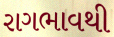
રાગભાવથી